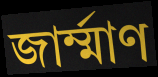
জার্ম্মাণ